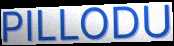
PILLODU